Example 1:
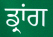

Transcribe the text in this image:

ਡ੍ਰਾਂਗ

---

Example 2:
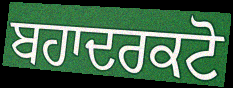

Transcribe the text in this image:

ਬਹਾਦਰਕਟੋ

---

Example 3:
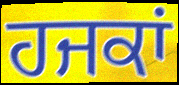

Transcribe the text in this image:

ਹਜਕਾਂ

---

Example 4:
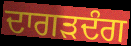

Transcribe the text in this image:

ਦਾਗੜਦੰਗ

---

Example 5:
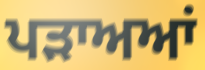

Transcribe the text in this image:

ਪੜਾਅਆਂ